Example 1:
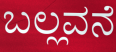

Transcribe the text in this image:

ಬಲ್ಲವನೆ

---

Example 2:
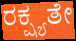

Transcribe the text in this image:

ರಕ್ಷ್ಯತೇ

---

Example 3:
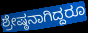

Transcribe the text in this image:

ಶ್ರೇಷ್ಠನಾಗಿದ್ದರೂ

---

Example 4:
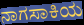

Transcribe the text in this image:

ನಾಗಸಾಕಿಯ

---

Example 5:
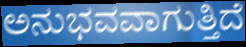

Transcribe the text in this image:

ಅನುಭವವಾಗುತ್ತಿದೆ